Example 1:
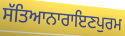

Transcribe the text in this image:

ਸੱਤਿਆਨਾਰਾਇਣਪੁਰਮ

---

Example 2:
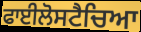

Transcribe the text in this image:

ਫਾਈਲੋਸਟੈਚਿਆ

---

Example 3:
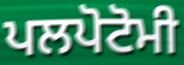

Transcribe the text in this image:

ਪਲਪੋਟੋਮੀ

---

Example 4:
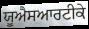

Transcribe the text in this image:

ਯੂਐਸਆਰਟੀਕੇ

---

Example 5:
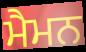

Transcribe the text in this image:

ਮੈਮਨ